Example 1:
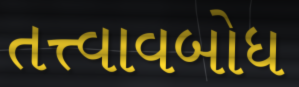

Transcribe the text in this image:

તત્ત્વાવબોધ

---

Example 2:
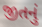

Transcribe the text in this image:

જીતનું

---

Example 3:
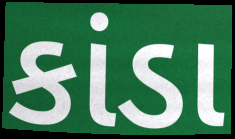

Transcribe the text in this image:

કાંડા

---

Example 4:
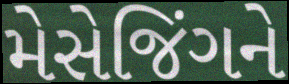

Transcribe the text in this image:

મેસેજિંગને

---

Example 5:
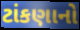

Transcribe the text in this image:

ટાંકણાનો